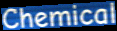
Chemical